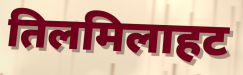
तिलमिलाहट